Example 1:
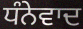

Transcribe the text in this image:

ਧੰਨੇਵਾਦ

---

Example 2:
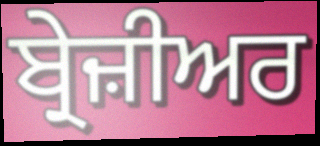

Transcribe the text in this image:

ਬ੍ਰੇਜ਼ੀਅਰ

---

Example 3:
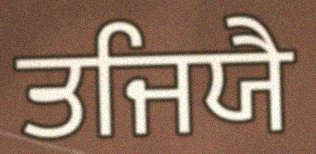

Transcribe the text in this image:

ਤਜਿਯੈ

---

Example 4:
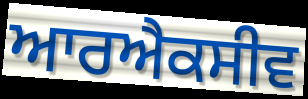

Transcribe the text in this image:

ਆਰਐਕਸੀਵ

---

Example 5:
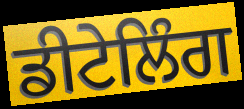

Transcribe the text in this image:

ਡੀਟੇਲਿੰਗ